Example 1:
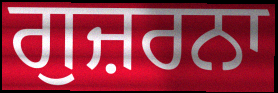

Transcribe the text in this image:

ਗੁਜ਼ਰਨਾ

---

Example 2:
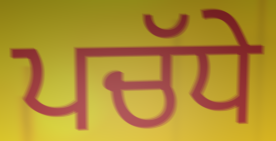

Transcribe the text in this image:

ਪਚੱਧੇ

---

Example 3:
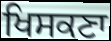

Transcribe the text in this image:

ਖਿਸਕਣਾ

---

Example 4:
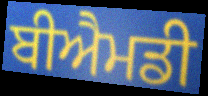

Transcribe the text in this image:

ਬੀਐਮਡੀ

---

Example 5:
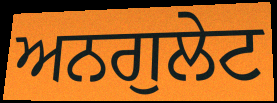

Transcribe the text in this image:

ਅਨਗੁਲੇਟ